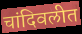
चांदिवलीत